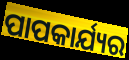
ପାପକାର୍ଯ୍ୟର